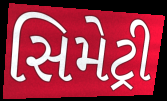
સિમેટ્રી